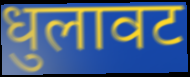
धुलावट